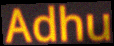
Adhu